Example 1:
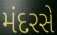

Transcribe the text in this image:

મંદરસે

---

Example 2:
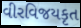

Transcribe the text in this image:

વીરવિજયકૃત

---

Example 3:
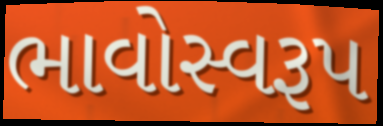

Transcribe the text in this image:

ભાવોસ્વરૂપ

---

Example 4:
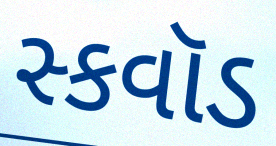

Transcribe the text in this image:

સ્કવૉડ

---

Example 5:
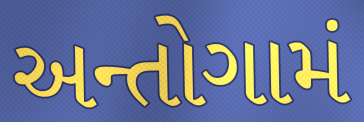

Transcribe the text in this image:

અન્તોગામં